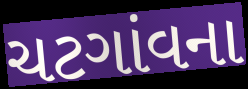
ચટગાંવના